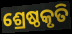
ଶ୍ରେଷ୍ଠକୃତି